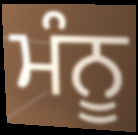
ਮੰਨੂ